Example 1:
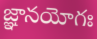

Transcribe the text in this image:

జ్ఞానయోగః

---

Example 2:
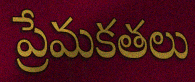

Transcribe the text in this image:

ప్రేమకతలు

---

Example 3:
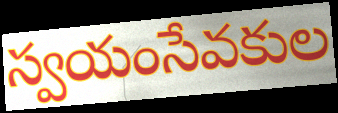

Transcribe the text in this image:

స్వయంసేవకుల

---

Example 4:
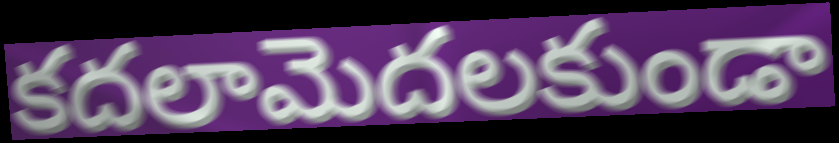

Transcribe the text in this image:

కదలామెదలకుండా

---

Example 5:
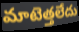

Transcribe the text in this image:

మాటెత్తలేదు